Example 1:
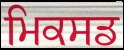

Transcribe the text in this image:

ਮਿਕਸਡ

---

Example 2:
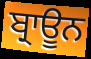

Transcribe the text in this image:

ਬ੍ਰਾਊਨ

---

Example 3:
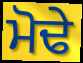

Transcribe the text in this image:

ਮੋਢੇ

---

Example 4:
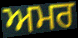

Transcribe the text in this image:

ਅਮਰ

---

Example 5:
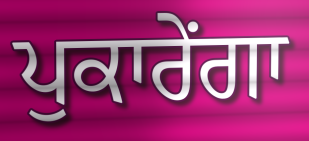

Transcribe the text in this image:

ਪੁਕਾਰੇਂਗਾ